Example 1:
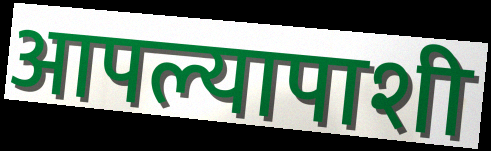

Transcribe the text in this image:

आपल्यापाशी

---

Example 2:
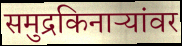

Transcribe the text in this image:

समुद्रकिनाऱ्यांवर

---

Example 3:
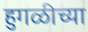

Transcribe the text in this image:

हुगळीच्या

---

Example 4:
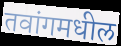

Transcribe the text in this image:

तवांगमधील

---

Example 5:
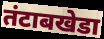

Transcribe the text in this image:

तंटाबखेडा